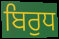
ਬਿਰੁਧ